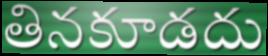
తినకూడదు